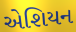
એશિયન